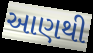
આણથી